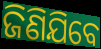
ଜିଣିଯିବେ